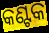
କଣ୍ଟକ